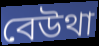
বেউথা